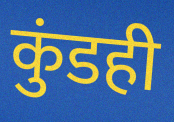
कुंडही